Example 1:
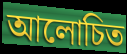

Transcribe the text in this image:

আলোচিত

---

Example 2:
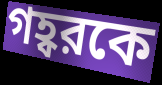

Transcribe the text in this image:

গহ্বরকে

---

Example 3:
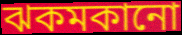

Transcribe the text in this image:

ঝকমকানো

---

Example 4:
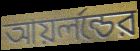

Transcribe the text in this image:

আয়র্লন্ডের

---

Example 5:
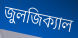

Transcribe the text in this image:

জুলজিক্যাল